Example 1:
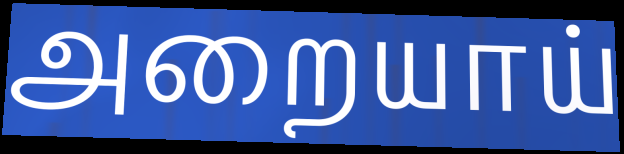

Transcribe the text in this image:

அறையாய்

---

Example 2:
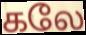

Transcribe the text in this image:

கலே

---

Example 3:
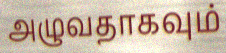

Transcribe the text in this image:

அழுவதாகவும்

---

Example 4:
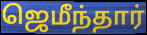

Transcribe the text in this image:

ஜெமீந்தார்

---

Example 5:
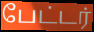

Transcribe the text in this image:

பேட்டர்